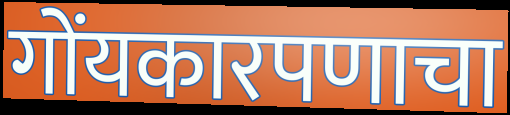
गोंयकारपणाचा